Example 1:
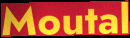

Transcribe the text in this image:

Moutal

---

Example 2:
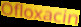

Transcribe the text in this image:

Ofloxacin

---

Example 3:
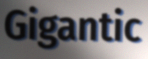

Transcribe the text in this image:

Gigantic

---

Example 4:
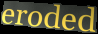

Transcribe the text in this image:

eroded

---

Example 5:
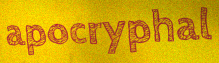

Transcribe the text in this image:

apocryphal